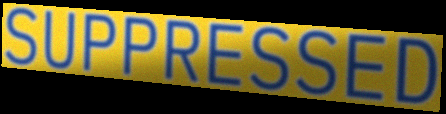
SUPPRESSED